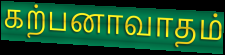
கற்பனாவாதம்